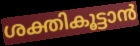
ശക്തികൂട്ടാൻ